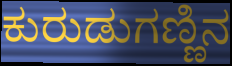
ಕುರುಡುಗಣ್ಣಿನ